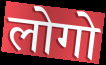
लोगो